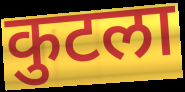
कुटला